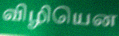
விழியென